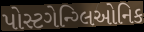
પોસ્ટગેન્ગ્લિઓનિક